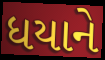
ધયાને